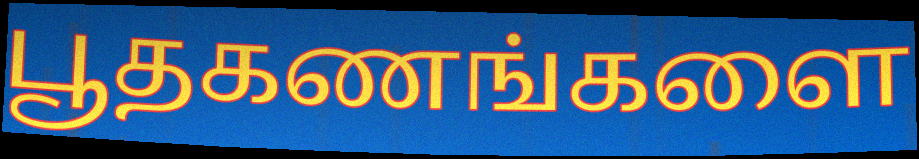
பூதகணங்களை